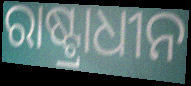
ରାଷ୍ଟ୍ରାଧୀନ